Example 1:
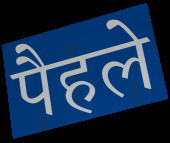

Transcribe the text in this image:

पैहले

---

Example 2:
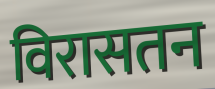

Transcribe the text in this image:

विरासतन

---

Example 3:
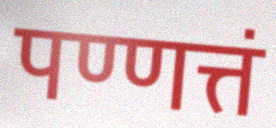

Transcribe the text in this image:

पण्णत्तं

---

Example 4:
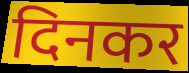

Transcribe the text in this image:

दिनकर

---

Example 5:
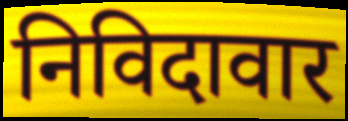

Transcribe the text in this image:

निविदावार